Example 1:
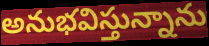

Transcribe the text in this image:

అనుభవిస్తున్నాను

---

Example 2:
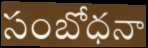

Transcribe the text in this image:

సంబోధనా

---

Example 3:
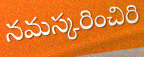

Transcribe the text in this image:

నమస్కరించిరి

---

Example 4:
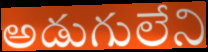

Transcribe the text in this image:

అడుగులేని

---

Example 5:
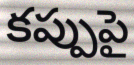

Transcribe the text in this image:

కప్పుపై